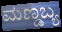
ಮಣ್ಡಬ್ಯ